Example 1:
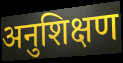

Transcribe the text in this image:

अनुशिक्षण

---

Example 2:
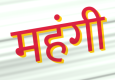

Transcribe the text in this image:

महंगी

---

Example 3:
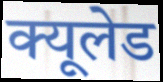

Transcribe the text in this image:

क्यूलेड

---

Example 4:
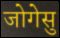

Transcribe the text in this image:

जोगेसु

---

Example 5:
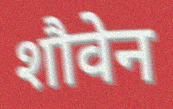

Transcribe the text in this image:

शौवेन